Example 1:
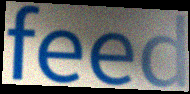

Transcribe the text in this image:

feed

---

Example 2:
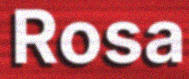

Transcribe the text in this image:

Rosa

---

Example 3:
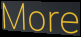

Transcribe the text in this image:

More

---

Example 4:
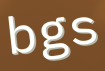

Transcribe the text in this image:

bgs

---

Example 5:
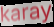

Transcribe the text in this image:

karay